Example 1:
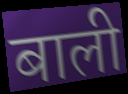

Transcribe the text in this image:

बाली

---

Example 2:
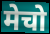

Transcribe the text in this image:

मेचो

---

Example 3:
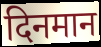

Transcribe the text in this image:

दिनमान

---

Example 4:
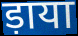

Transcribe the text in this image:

ड़ाया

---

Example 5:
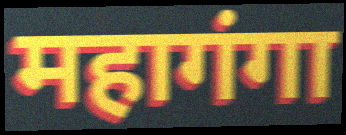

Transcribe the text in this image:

महागंगा